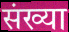
संख्या